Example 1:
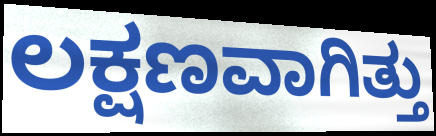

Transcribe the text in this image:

ಲಕ್ಷಣವಾಗಿತ್ತು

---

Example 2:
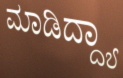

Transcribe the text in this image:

ಮಾಡಿದ್ದ್ಯಾ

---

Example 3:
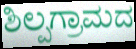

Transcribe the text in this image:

ಶಿಲ್ಪಗ್ರಾಮದ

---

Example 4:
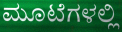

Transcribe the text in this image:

ಮೂಟೆಗಳಲ್ಲಿ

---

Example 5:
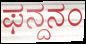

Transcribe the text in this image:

ಫನ್ದನಂ